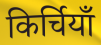
किर्चियाँ